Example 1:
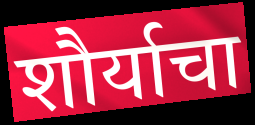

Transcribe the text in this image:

शौर्याचा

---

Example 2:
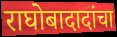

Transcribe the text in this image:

राघोबादादांचा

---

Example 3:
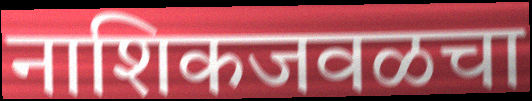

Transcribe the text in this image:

नाशिकजवळचा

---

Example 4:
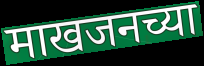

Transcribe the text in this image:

माखजनच्या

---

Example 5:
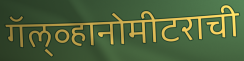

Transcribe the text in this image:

गॅल्व्हानोमीटराची